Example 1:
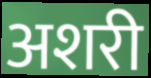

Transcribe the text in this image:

अशरी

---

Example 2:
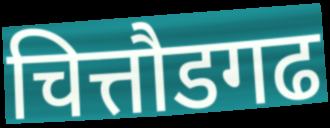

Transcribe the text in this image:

चित्तौडगढ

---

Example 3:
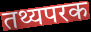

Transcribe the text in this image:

तथ्यपरक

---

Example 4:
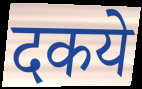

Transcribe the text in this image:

दकये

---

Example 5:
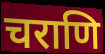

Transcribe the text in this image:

चराणि